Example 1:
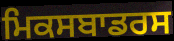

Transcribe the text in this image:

ਮਿਕਸਬਾਡਰਸ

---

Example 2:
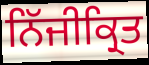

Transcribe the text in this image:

ਨਿੱਜੀਕ੍ਰਿਤ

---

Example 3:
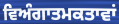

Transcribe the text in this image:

ਵਿਅੰਗਾਤਮਕਤਾਵਾਂ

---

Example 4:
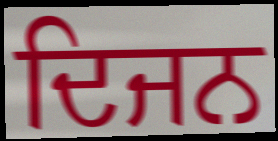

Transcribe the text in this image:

ਦਿਜਨ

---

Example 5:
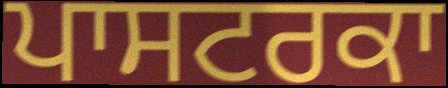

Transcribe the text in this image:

ਪਾਸਟਰਕਾ